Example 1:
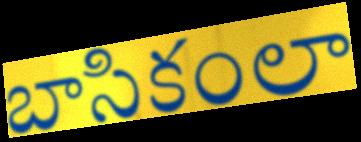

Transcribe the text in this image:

బాసికంలా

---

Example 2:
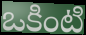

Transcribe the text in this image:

ఒకింటి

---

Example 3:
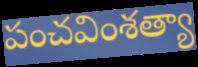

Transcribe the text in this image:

పంచవింశత్యా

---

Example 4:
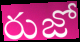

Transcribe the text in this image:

రుజో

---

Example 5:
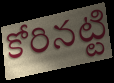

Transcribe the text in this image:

కోరినట్టి